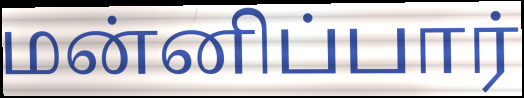
மன்னிப்பார்